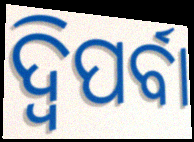
ଦ୍ଵିପର୍ବା